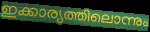
ഇക്കാര്യത്തിലൊന്നും